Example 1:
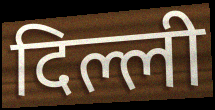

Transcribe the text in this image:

दिल्‍ली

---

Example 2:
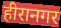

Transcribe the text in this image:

हीरानगर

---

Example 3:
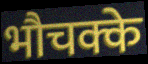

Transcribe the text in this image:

भौचक्के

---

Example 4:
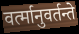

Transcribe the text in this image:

वर्त्मानुवर्तन्ते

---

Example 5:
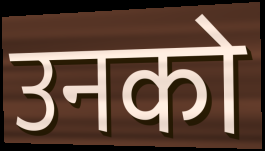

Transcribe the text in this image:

उनको